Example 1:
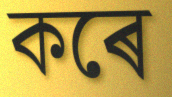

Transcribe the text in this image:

কৰে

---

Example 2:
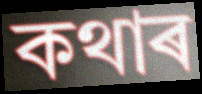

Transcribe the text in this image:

কথাৰ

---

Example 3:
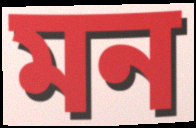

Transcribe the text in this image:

মন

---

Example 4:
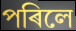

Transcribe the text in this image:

পৰিলে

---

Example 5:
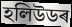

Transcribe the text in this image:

হলিউডৰ